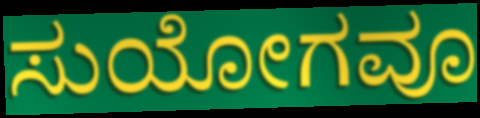
ಸುಯೋಗವೂ